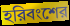
হরিবংশের